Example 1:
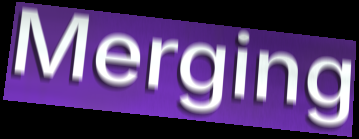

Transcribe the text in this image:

Merging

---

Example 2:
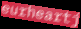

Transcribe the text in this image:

eurheartj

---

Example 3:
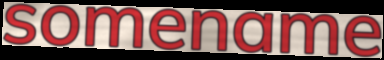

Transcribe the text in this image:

somename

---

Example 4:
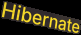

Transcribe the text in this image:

Hibernate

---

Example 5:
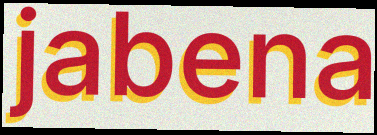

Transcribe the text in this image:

jabena